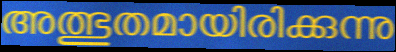
അത്ഭുതമായിരിക്കുന്നു